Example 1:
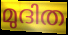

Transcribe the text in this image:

മുദിത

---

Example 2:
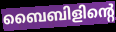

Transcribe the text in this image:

ബൈബിളിന്റെ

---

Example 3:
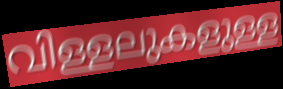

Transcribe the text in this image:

വിള്ളലുകളുള്ള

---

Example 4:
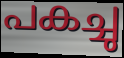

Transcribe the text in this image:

പകച്ചു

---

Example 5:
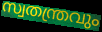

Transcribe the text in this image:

സ്വതന്ത്രവും